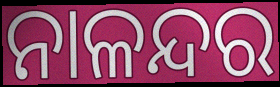
ନାଳନ୍ଦର